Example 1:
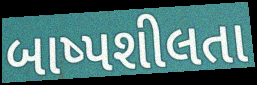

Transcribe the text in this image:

બાષ્પશીલતા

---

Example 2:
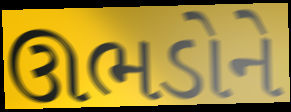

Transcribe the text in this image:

ઊભડોને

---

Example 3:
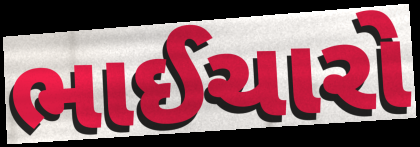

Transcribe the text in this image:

ભાઈચારો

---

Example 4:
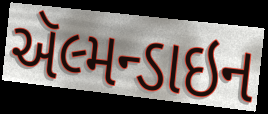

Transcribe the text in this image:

ઍલ્મન્ડાઇન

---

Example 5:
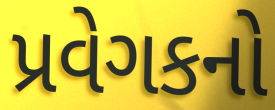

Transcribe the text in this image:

પ્રવેગકનો